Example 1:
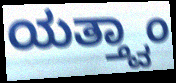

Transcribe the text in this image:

ಯತ್ತ್ವಾಂ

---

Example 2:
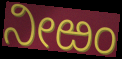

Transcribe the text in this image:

ನೀಱಂ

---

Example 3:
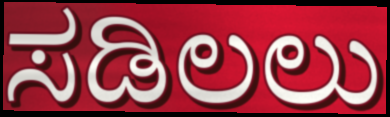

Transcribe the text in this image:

ಸಡಿಲಲು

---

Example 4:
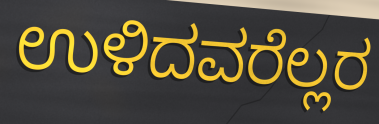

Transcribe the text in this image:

ಉಳಿದವರೆಲ್ಲರ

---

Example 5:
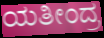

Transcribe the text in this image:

ಯತೀಂದ್ರ